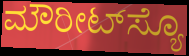
ಮೌರೀಟ್‌ಸ್ಯೊ